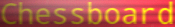
Chessboard